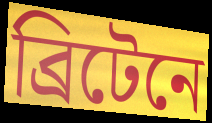
ব্রিটেনে